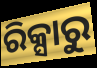
ରିକ୍ସାରୁ